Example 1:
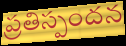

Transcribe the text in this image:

ప్రతిస్పందన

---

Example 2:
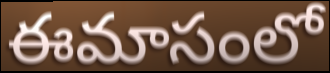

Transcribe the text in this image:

ఈమాసంలో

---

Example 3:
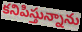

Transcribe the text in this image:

కనిపిస్తున్నాను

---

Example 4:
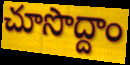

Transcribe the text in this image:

చూసొద్దాం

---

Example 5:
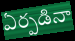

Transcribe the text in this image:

ఏర్పడినా